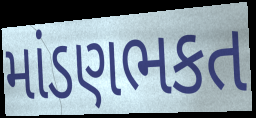
માંડણભકત